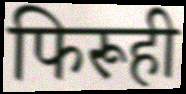
फिरूही